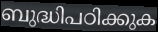
ബുദ്ധിപഠിക്കുക